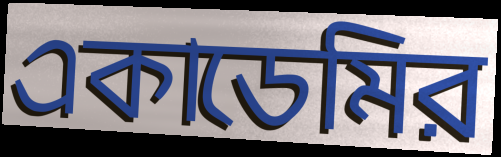
একাডেমির